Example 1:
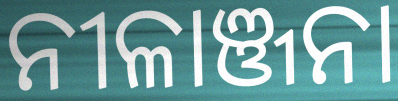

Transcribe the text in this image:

ନୀଳାଞ୍ଜନା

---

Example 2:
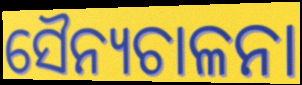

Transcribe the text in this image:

ସୈନ୍ୟଚାଳନା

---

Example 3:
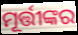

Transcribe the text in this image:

ମୂର୍ତ୍ତୀଙ୍କର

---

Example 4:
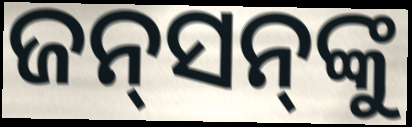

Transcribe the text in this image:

ଜନ୍‍ସନ୍‍ଙ୍କୁ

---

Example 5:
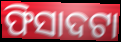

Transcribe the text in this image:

ଫିସାଦଟା